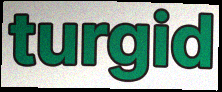
turgid